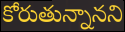
కోరుతున్నానని